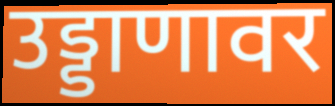
उड्डाणावर